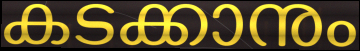
കടക്കാനും